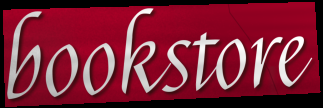
bookstore